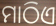
ମାଠିଏ